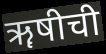
ॠषीची